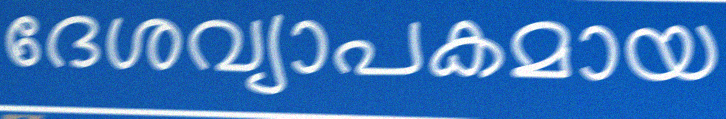
ദേശവ്യാപകമായ